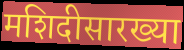
मशिदीसारख्या